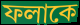
ফলাকে